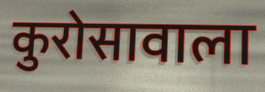
कुरोसावाला